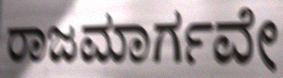
ರಾಜಮಾರ್ಗವೇ